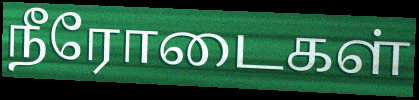
நீரோடைகள்